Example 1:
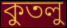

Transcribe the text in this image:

কুতলু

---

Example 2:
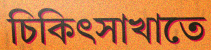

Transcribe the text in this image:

চিকিৎসাখাতে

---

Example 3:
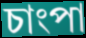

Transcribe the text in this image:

চাংপা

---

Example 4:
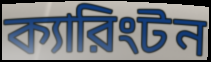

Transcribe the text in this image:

ক্যারিংটন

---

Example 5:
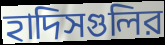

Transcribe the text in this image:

হাদিসগুলির